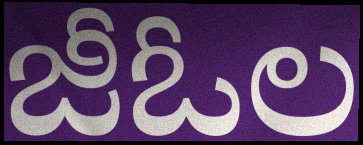
జీఓల